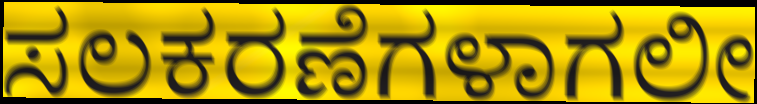
ಸಲಕರಣೆಗಳಾಗಲೀ